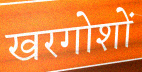
खरगोशों